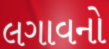
લગાવનો